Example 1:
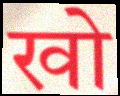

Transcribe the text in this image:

खो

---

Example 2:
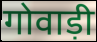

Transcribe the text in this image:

गोवाड़ी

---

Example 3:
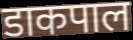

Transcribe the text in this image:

डाकपाल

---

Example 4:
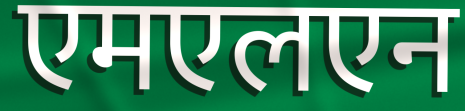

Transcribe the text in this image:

एमएलएन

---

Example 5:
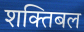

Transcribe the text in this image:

शक्तिबल